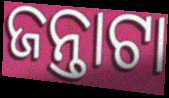
ଜନ୍ତାଟା